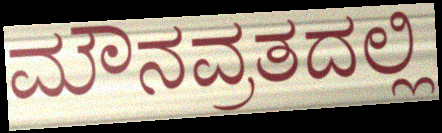
ಮೌನವ್ರತದಲ್ಲಿ